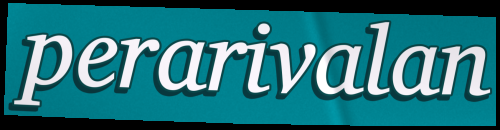
perarivalan